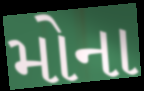
મોના